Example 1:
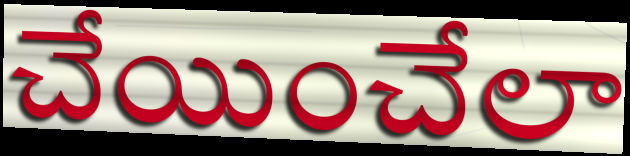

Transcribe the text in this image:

చేయించేలా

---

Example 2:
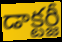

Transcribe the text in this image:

డాక్టర్జీ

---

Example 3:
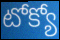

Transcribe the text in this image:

టోక్యో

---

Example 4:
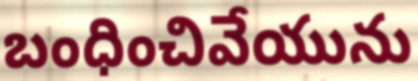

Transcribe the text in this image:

బంధించివేయును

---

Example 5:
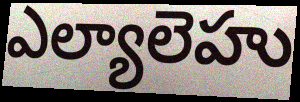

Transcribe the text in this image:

ఎల్యాలెహు